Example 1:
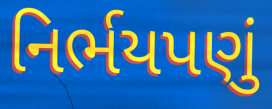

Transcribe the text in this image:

નિર્ભયપણું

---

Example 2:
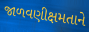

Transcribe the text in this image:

જાળવણીક્ષમતાને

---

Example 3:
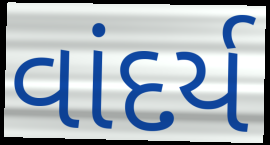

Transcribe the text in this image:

વાંદર્ય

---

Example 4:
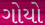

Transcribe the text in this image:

ગોયો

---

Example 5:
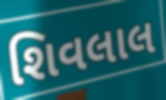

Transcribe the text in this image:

શિવલાલ